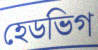
হেডভিগ